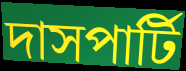
দাসপার্টি